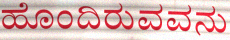
ಹೊಂದಿರುವವನು